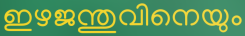
ഇഴജന്തുവിനെയും